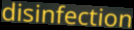
disinfection